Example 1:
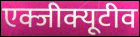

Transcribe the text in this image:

एक्जीक्यूटीव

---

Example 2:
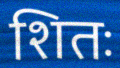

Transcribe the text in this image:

शितः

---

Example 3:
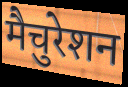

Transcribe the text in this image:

मैचुरेशन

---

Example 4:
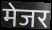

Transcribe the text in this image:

मेजर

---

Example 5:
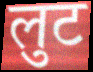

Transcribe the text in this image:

लुट